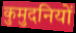
कुमुदनियों